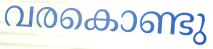
വരകൊണ്ടു